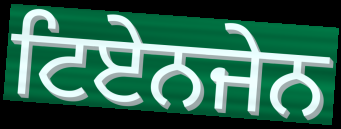
ਟਿਏਨਜੇਨ